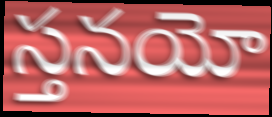
స్తనయో